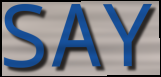
SAY